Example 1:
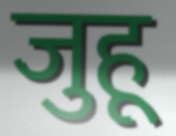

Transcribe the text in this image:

जुहू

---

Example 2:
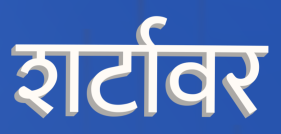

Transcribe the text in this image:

शर्टावर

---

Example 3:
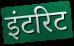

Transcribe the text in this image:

इंटरिट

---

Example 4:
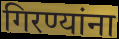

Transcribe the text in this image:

गिरण्यांना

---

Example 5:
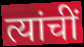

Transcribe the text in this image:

त्यांचीं